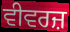
ਵੀਵਰਜ਼